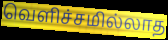
வெளிச்சமில்லாத